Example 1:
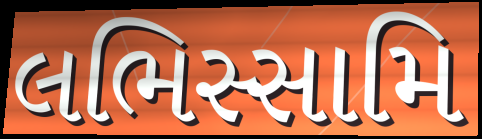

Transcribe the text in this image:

લભિસ્સામિ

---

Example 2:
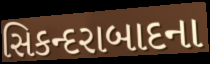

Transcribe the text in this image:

સિકન્દરાબાદના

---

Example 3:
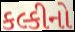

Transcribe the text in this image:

કલ્કીનો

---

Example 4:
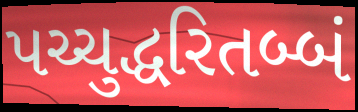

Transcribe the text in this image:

પચ્ચુદ્ધરિતબ્બં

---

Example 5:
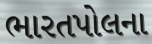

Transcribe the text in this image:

ભારતપોલના